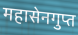
महासेनगुप्त